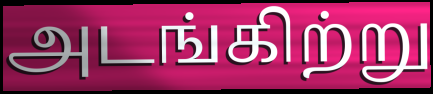
அடங்கிற்று